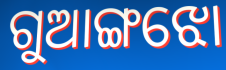
ଗୁଆଙ୍ଗଝୋ